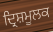
ਦ੍ਰਿਸ਼ਮੂਲਕ